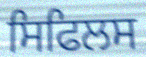
ਸਿਫਿਲਸ